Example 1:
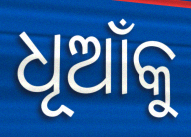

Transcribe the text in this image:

ଧୂଆଁକୁ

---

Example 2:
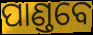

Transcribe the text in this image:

ପାଣ୍ଡବେ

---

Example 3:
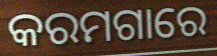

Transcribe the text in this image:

କରମଗାରେ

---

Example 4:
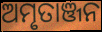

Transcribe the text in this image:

ଅମୃତାଞ୍ଜନ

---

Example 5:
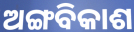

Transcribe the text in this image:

ଅଙ୍ଗବିକାଶ